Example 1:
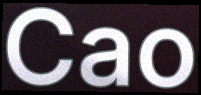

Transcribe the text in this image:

Cao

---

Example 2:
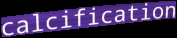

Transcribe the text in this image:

calcification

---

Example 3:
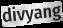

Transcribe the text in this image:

divyang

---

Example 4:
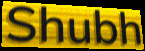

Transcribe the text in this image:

Shubh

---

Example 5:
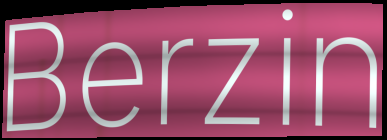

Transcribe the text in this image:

Berzin